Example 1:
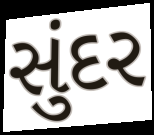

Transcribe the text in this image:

સુંદર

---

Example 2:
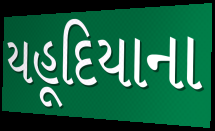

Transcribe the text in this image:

યહૂદિયાના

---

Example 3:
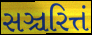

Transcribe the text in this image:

સઞ્ચરિત્તં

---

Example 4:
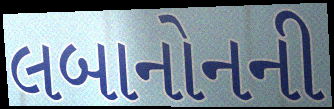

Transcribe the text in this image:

લબાનોનની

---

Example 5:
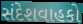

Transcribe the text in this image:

સંદેશવાહકો